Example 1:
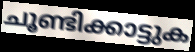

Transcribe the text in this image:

ചൂണ്ടിക്കാട്ടുക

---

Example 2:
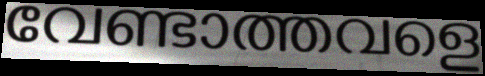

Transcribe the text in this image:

വേണ്ടാത്തവളെ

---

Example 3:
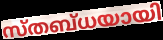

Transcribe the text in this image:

സ്തബ്ധയായി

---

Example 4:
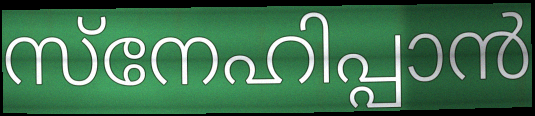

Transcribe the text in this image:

സ്നേഹിപ്പാൻ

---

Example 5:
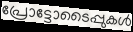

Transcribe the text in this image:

പ്രോട്ടോടൈപ്പുകൾ